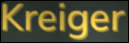
Kreiger